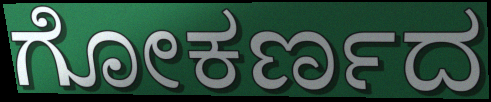
ಗೋಕರ್ಣದ